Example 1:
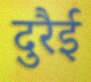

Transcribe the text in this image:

दुरैई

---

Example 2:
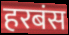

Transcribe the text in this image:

हरबंस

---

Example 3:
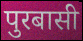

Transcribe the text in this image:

पुरबासी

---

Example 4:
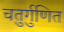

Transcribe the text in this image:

चतुर्गुणित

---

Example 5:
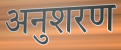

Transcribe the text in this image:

अनुशरण